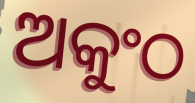
ଅକୁଂଠ